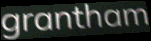
grantham